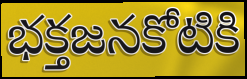
భక్తజనకోటికి